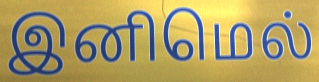
இனிமெல்